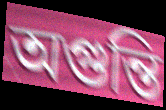
অগুন্তি